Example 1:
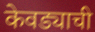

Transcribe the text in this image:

केवड्याची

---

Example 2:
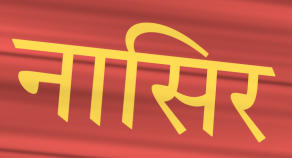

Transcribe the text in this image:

नासिर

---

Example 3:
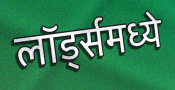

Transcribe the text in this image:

लॉर्ड्समध्ये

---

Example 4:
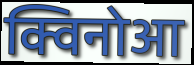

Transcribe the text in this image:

क्विनोआ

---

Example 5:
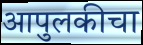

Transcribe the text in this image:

आपुलकीचा